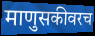
माणुसकीवरच